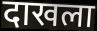
दाखला